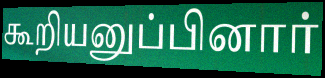
கூறியனுப்பினார்